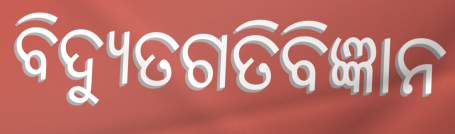
ବିଦ୍ୟୁତଗତିବିଜ୍ଞାନ